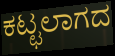
ಕಟ್ಟಲಾಗದ